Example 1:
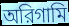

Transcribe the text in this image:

অরিগামি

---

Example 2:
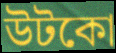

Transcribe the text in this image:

উটকো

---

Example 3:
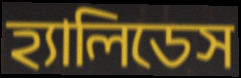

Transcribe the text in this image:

হ্যালিডেস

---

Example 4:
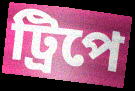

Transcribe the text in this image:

ট্রিপে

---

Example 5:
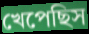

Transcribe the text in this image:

খেপেছিস